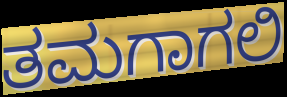
ತಮಗಾಗಲಿ